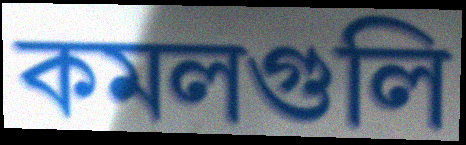
কমলগুলি